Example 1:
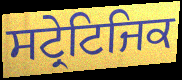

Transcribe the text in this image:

ਸਟ੍ਰੇਟਿਜਿਕ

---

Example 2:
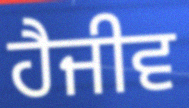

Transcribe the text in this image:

ਹੈਜੀਵ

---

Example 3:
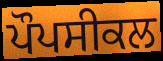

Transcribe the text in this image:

ਪੌਪਸੀਕਲ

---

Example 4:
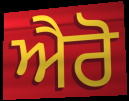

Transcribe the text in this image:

ਐਰੋ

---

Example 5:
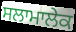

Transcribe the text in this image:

ਸਲਾਮਾਲੇਕ